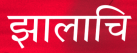
झालाचि